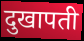
दुखापती